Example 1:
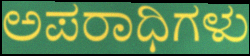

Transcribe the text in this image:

ಅಪರಾಧಿಗಳು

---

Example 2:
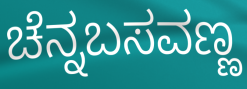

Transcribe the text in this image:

ಚೆನ್ನಬಸವಣ್ಣ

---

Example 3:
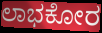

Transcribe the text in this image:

ಲಾಭಕೋರ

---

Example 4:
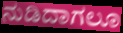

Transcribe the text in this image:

ನುಡಿದಾಗಲೂ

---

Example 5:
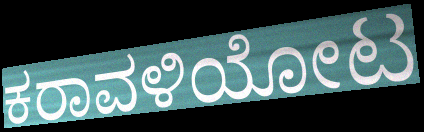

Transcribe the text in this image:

ಕರಾವಳಿಯೋಟ